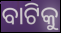
ବାଟିକୁ